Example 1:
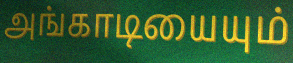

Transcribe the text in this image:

அங்காடியையும்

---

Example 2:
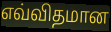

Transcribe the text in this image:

எவ்விதமான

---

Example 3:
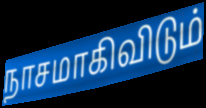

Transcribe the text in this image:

நாசமாகிவிடும்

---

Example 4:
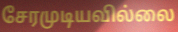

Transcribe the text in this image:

சேரமுடியவில்லை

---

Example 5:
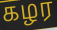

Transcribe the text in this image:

கழர